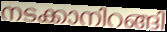
നടക്കാനിറങ്ങി